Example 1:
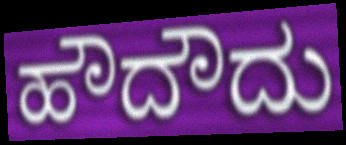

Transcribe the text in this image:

ಹೌದೌದು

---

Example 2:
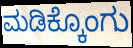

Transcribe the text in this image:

ಮಡಿಕ್ಕೊಂಗು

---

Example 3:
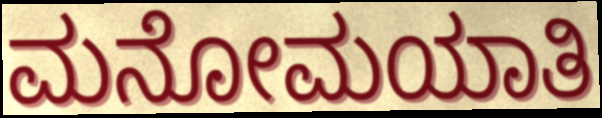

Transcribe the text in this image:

ಮನೋಮಯಾತಿ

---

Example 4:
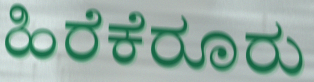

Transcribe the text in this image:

ಹಿರೆಕೆರೂರು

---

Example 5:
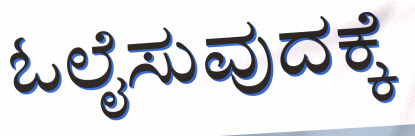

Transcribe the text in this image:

ಓಲೈಸುವುದಕ್ಕೆ